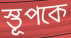
স্তূপকে